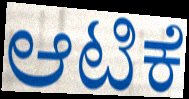
ಆಟಿಕೆ